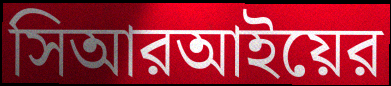
সিআরআইয়ের